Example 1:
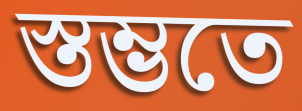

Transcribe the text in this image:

স্তম্ভতে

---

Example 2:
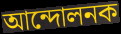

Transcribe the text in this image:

আন্দোলনক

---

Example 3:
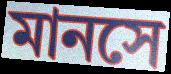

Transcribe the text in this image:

মানসে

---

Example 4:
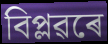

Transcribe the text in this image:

বিপ্লৱৰে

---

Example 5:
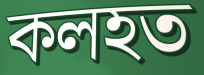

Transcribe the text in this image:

কলহত